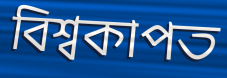
বিশ্বকাপত